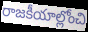
రాజకీయాల్లోంచి